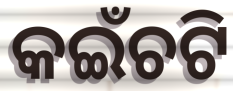
କଇଁଚଟି